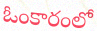
ఓంకారంలో